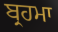
ਬ੍ਰਹਮਾ